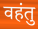
वहंतु